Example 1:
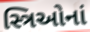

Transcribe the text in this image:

સ્ત્રિઓનાં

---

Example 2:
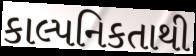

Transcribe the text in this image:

કાલ્પનિકતાથી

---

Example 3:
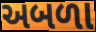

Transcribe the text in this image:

અબળા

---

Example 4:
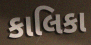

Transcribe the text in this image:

કાલિકા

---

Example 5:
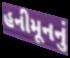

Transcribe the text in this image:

હનીમૂનનું